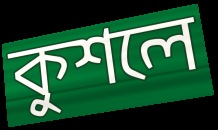
কুশলে